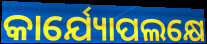
କାର୍ଯ୍ୟୋପଲକ୍ଷେ